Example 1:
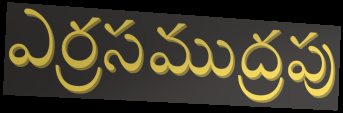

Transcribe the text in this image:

ఎర్రసముద్రపు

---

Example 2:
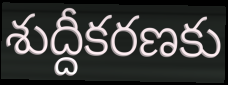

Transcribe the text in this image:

శుద్దీకరణకు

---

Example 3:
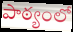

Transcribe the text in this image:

పాఠ్యంలో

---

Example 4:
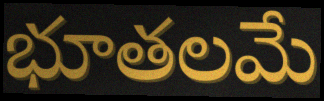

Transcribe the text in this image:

భూతలమే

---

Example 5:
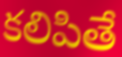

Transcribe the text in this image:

కలిపితే